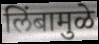
लिंबामुळे